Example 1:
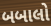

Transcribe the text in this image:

બબાલો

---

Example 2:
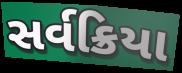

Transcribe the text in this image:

સર્વક્રિયા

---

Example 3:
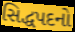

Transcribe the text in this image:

સિદ્ધપદનો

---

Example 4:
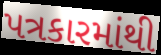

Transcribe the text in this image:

પત્રકારમાંથી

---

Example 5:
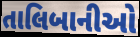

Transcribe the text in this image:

તાલિબાનીઓ